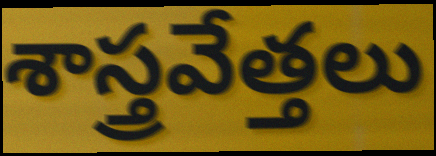
శాస్త్రవేత్తలు